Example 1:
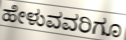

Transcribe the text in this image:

ಹೇಳುವವರಿಗೂ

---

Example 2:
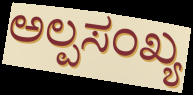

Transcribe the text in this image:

ಅಲ್ಪಸಂಖ್ಯ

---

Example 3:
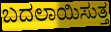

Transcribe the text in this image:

ಬದಲಾಯಿಸುತ್ತ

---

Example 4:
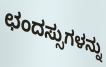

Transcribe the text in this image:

ಛಂದಸ್ಸುಗಳನ್ನು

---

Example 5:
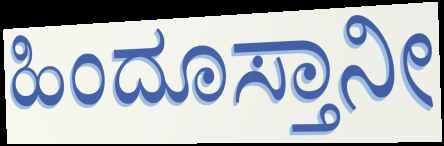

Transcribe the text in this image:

ಹಿಂದೂಸ್ತಾನೀ